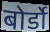
बोर्डो